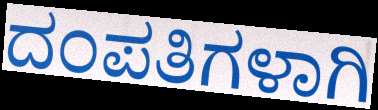
ದಂಪತಿಗಳಾಗಿ